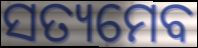
ସତ୍ୟମେବ